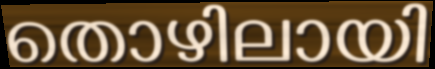
തൊഴിലായി